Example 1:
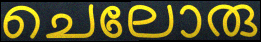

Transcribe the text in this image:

ചെലോരു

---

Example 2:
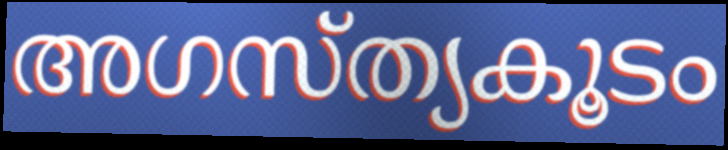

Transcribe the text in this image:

അഗസ്ത്യകൂടം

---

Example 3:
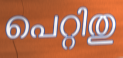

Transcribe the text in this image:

പെറ്റിതു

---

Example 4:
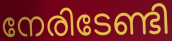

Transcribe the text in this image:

നേരിടേണ്ടി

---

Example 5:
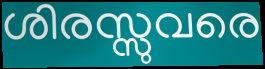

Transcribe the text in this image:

ശിരസ്സുവരെ